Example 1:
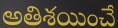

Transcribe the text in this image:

అతిశయించే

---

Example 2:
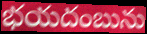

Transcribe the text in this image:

భయదంబును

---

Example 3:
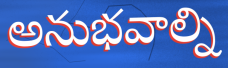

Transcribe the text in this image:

అనుభవాల్ని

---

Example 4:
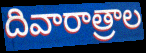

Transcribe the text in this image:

దివారాత్రాల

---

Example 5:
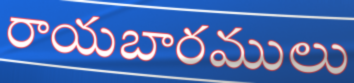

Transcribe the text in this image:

రాయబారములు